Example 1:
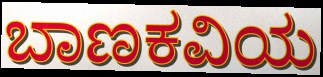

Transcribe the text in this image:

ಬಾಣಕವಿಯ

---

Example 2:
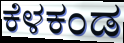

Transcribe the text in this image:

ಕೆಳಕಂಡ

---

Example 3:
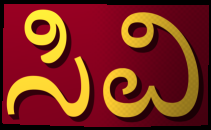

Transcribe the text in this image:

ಸಿವಿ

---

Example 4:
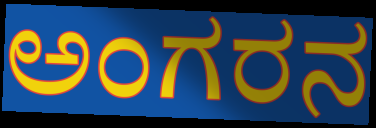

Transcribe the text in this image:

ಅಂಗರನ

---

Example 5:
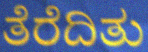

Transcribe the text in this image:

ತೆರೆದಿತು